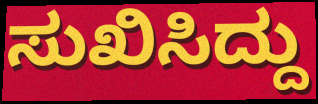
ಸುಖಿಸಿದ್ದು